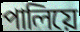
পালিয়ে